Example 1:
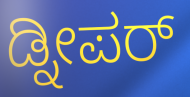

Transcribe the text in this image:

ಡ್ನೀಪರ್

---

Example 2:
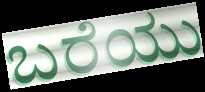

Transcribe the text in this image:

ಬರೆಯು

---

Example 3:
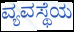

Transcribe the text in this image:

ವ್ಯವಸ್ಥೆಯ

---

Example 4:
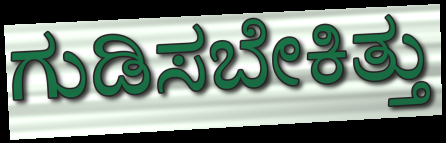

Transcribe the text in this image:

ಗುಡಿಸಬೇಕಿತ್ತು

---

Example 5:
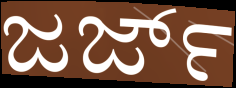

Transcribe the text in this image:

ಜರ್ಜ್